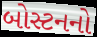
બોસ્ટનનો